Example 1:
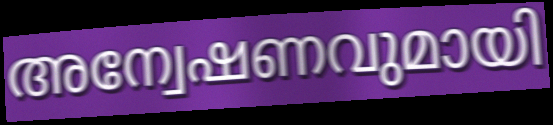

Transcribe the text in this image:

അന്വേഷണവുമായി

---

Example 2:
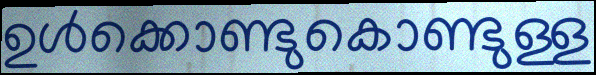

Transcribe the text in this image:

ഉൾക്കൊണ്ടുകൊണ്ടുള്ള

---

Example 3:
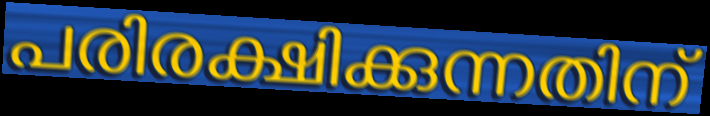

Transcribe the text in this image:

പരിരക്ഷിക്കുന്നതിന്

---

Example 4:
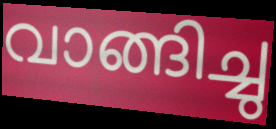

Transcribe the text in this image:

വാങ്ങിച്ചു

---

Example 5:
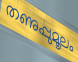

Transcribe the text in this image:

തണുപ്പുമൂലം